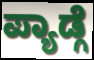
ಪ್ಯಾಡ್ಗೆ